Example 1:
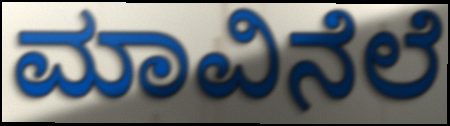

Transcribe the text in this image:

ಮಾವಿನೆಲೆ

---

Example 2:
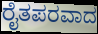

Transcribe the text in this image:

ರೈತಪರವಾದ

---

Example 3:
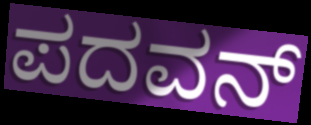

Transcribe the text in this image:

ಪದವನ್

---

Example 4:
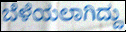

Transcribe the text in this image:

ಬೆಳೆಯಲಾಗಿದ್ದು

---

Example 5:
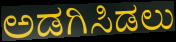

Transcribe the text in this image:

ಅಡಗಿಸಿಡಲು